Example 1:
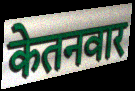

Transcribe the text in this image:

केतनवार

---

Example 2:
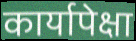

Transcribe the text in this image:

कार्यापेक्षा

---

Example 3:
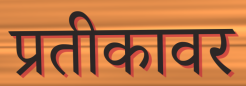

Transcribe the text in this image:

प्रतीकावर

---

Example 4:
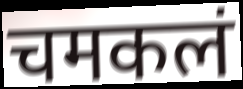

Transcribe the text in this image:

चमकलं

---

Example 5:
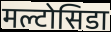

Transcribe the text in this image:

मल्टोसिडा